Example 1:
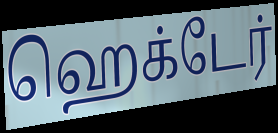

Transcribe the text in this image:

ஹெக்டேர்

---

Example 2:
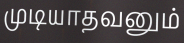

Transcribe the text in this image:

முடியாதவனும்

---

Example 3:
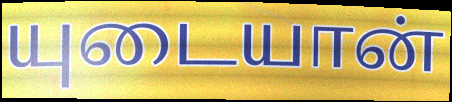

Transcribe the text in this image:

யுடையான்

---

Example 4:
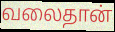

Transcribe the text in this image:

வலைதான்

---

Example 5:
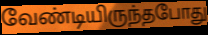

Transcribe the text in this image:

வேண்டியிருந்தபோது